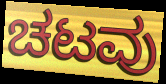
ಚಟವು